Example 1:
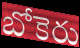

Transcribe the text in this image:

బోకెరు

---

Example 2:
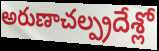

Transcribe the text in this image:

అరుణాచల్ప్రదేశ్లో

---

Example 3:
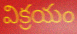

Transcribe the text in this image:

విక్రయం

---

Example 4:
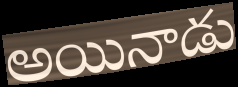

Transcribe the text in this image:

అయినాడు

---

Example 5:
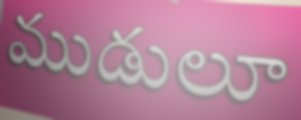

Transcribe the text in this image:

ముడులూ